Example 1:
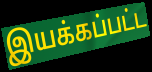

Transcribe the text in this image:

இயக்கப்பட்ட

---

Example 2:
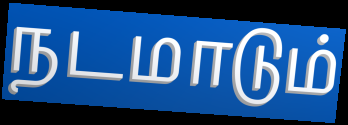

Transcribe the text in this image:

நடமாடும்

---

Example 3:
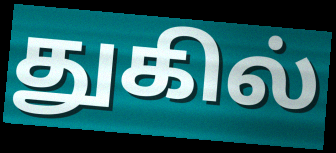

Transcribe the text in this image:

துகில்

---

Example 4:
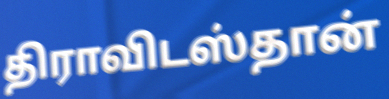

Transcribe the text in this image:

திராவிடஸ்தான்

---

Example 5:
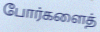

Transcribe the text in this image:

போர்களைத்